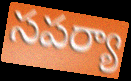
సపర్యా